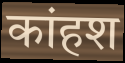
कांहश